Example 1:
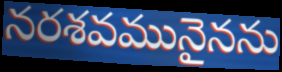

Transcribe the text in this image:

నరశవమునైనను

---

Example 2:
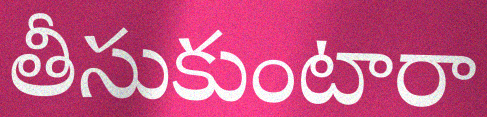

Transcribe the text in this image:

తీసుకుంటారా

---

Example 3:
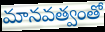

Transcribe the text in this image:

మానవత్వంతో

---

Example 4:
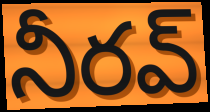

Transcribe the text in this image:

నీరవ్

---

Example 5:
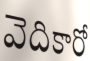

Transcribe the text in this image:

వెదికారో